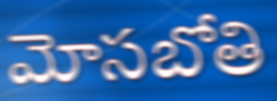
మోసబోతి